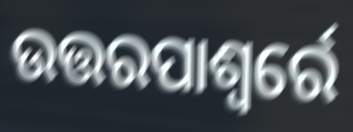
ଉତ୍ତରପାଶ୍ୱର୍ରେ